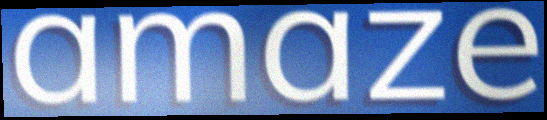
amaze